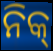
ନିକ୍